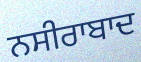
ਨਸੀਰਾਬਾਦ